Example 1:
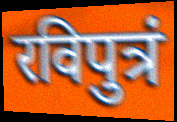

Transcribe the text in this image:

रविपुत्रं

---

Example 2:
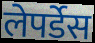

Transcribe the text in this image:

लेपर्डेस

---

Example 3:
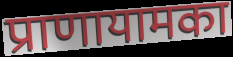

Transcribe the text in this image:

प्राणायामका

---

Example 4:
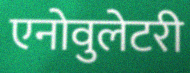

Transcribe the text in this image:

एनोवुलेटरी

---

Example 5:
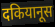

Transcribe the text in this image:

दकियानूस